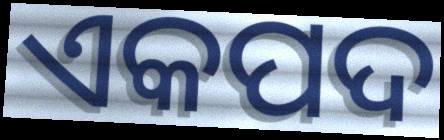
ଏକପଦ